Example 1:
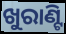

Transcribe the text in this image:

ଖୁରାଣ୍ଟି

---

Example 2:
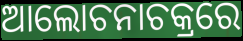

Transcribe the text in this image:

ଆଲୋଚନାଚକ୍ରରେ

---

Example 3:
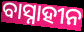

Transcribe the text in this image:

ବାସ୍ନାହୀନ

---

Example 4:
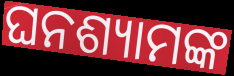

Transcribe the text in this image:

ଘନଶ୍ୟାମଙ୍କ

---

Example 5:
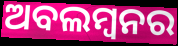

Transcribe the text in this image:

ଅବଲମ୍ବନର